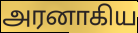
அரனாகிய